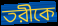
তরীকে